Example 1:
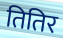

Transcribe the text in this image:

तितिर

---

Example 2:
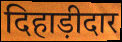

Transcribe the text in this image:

दिहाड़ीदार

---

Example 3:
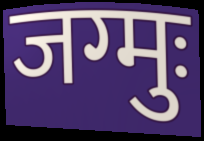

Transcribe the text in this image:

जग्मुः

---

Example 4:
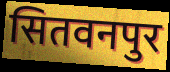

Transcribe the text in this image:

सितवनपुर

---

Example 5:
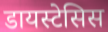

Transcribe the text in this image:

डायस्टेसिस